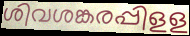
ശിവശങ്കരപ്പിളള